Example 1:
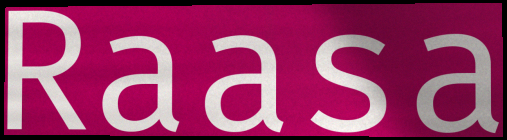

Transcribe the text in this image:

Raasa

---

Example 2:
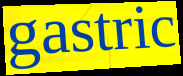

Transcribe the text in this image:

gastric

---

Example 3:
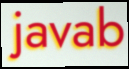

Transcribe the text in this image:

javab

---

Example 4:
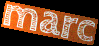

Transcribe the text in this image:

marc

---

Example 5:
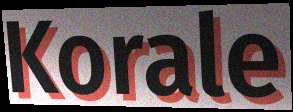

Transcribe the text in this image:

Korale